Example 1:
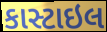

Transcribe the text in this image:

કાસ્ટાઇલ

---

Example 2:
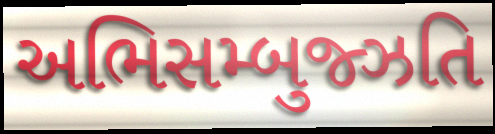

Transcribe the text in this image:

અભિસમ્બુજ્ઝતિ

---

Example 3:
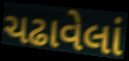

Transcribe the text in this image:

ચઢાવેલાં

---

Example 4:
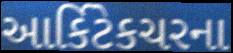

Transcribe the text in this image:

આર્કિટેકચરના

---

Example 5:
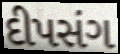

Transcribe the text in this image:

દીપસંગ